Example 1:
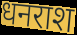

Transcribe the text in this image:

धनराश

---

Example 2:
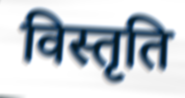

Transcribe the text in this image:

विस्तृति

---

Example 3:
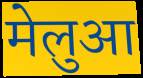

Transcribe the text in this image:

मेलुआ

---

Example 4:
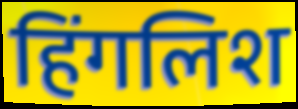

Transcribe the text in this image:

हिंगलिश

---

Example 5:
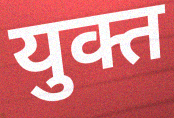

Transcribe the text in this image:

युक्त